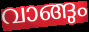
വാങ്ങും